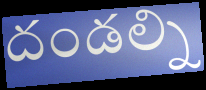
దండల్ని